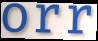
orr